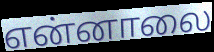
என்னாலை